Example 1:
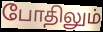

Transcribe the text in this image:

போதிலும்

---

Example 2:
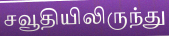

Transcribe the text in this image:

சவூதியிலிருந்து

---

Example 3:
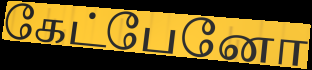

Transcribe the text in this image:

கேட்பேனோ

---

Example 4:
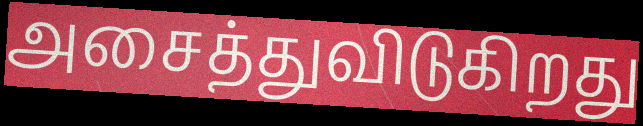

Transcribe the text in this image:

அசைத்துவிடுகிறது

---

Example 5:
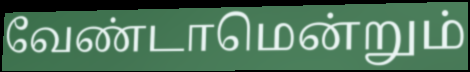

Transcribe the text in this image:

வேண்டாமென்றும்